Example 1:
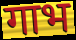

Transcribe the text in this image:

गाभ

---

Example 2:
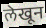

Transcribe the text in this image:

लेखून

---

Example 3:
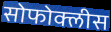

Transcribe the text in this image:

सोफोक्लीस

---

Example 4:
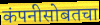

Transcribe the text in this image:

कंपनीसोबतचा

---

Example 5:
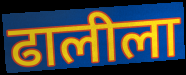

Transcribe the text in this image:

ढालीला